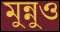
মুন্নুও